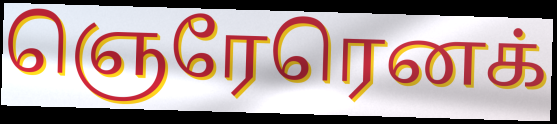
ஞெரேரெனக்